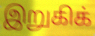
இறுகிக்